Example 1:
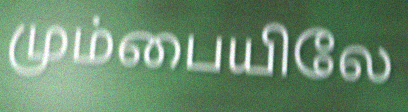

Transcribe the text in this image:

மும்பையிலே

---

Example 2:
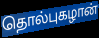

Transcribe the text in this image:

தொல்புகழான்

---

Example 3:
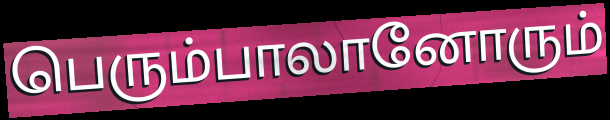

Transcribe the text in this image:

பெரும்பாலானோரும்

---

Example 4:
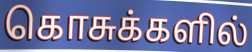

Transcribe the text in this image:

கொசுக்களில்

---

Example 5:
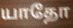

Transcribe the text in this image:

யாதோ